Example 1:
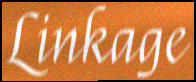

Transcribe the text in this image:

Linkage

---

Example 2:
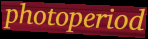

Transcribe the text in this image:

photoperiod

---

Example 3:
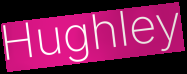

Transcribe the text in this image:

Hughley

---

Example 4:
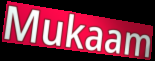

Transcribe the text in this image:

Mukaam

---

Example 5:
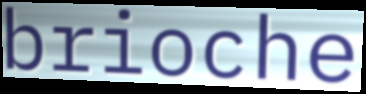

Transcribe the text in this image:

brioche